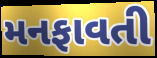
મનફાવતી